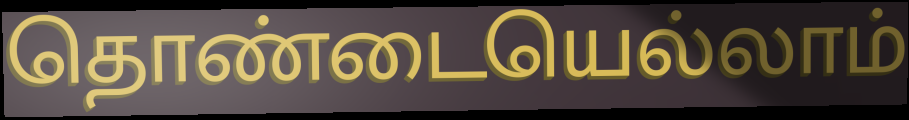
தொண்டையெல்லாம்